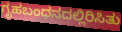
ಗೃಹಬಂಧನದಲ್ಲಿರಿಸಿತು